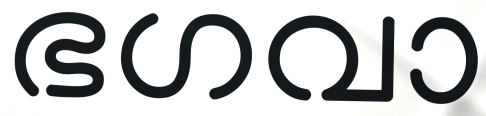
ഭഗവാ